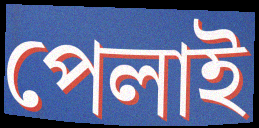
পেলাই